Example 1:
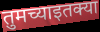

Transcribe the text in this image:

तुमच्याइतक्या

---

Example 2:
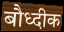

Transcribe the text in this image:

बौध्दीक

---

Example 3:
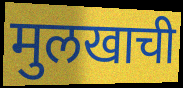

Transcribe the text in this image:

मुलखाची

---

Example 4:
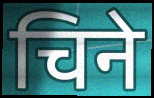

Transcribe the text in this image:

चिने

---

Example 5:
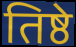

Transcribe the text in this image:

तिष्ठे